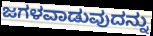
ಜಗಳವಾಡುವುದನ್ನು